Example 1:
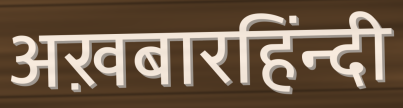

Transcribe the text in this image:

अख़बारहिंन्दी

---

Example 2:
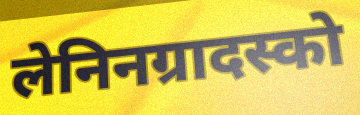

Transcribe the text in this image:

लेनिनग्रादस्को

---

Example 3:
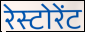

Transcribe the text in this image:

रेस्‍टोरेंट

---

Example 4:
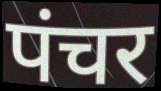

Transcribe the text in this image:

पंचर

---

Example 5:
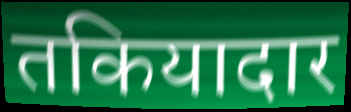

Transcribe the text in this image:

तकियादार